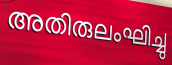
അതിരുലംഘിച്ചു